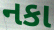
નકા